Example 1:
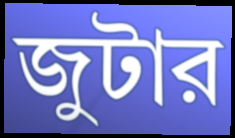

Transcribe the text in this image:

জুটার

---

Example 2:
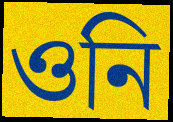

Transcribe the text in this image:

ওনি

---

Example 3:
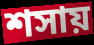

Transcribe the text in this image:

শসায়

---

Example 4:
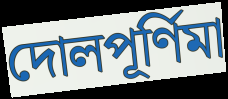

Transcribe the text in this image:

দোলপূর্ণিমা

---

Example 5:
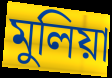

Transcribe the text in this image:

মুলিয়া